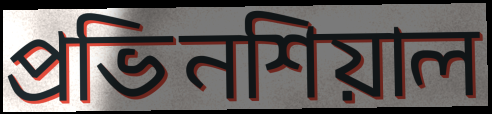
প্রভিনশিয়াল